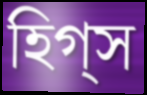
হিগ্স